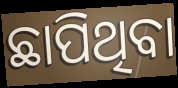
ଛାପିଥିବା